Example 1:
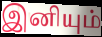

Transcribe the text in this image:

இனியும்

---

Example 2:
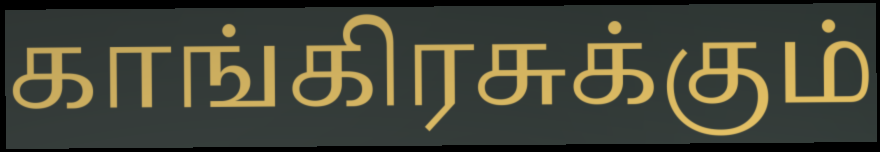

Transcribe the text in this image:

காங்கிரசுக்கும்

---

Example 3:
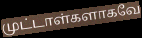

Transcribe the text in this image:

முட்டாள்களாகவே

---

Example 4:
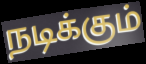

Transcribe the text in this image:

நடிக்கும்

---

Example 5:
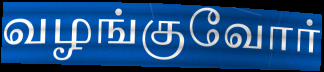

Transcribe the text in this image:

வழங்குவோர்